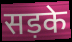
सड़के